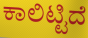
ಕಾಲಿಟ್ಟಿದೆ